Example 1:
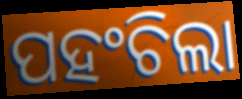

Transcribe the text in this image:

ପହଂଚିଲା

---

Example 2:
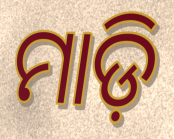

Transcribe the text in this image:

ମାଡ଼ି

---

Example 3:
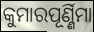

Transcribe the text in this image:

କୁମାରପୂର୍ଣ୍ଣିମା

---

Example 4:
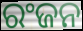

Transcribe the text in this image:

ରଂଜନ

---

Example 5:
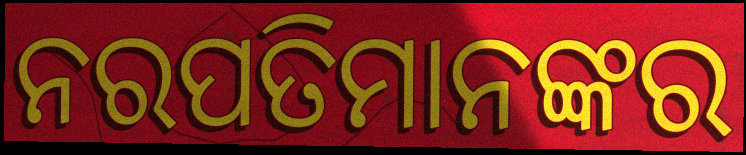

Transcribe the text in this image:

ନରପତିମାନଙ୍କର